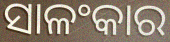
ସାଳଂକାର